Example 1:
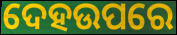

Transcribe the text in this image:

ଦେହଉପରେ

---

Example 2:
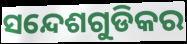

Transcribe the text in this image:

ସନ୍ଦେଶଗୁଡିକର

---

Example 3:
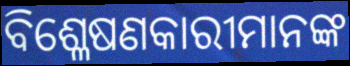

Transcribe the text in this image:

ବିଶ୍ଳେଷଣକାରୀମାନଙ୍କ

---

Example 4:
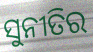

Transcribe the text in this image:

ସୁନୀତିର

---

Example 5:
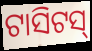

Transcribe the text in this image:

ଟାସିଟସ୍